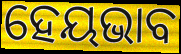
ହେୟଭାବ